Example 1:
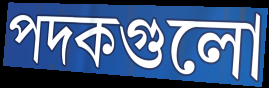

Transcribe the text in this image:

পদকগুলো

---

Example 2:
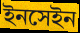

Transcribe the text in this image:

ইনসেইন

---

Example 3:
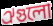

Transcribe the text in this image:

ঐগুলো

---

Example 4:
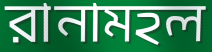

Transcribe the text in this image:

রানামহল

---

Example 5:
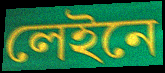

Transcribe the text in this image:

লেইনে